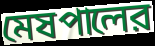
মেষপালের